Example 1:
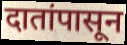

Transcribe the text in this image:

दातांपासून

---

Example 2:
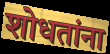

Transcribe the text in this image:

शोधतांना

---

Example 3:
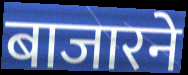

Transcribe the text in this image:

बाजारने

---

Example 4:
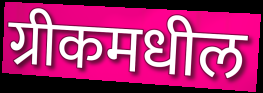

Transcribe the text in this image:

ग्रीकमधील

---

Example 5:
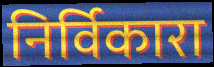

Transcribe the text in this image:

निर्विकारा